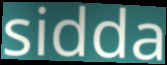
sidda